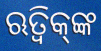
ଋତ୍ୱିକ୍‌ଙ୍କ